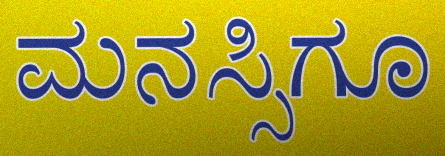
ಮನಸ್ಸಿಗೂ